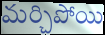
మర్చిపోయి